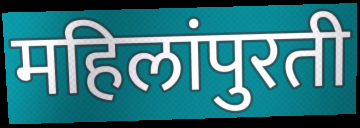
महिलांपुरती